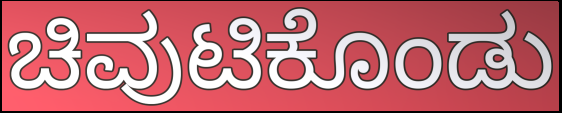
ಚಿವುಟಿಕೊಂಡು